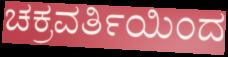
ಚಕ್ರವರ್ತಿಯಿಂದ